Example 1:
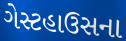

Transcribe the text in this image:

ગેસ્ટહાઉસના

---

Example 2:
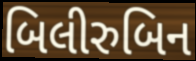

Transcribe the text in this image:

બિલીરુબિન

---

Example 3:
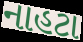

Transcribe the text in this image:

નાહટા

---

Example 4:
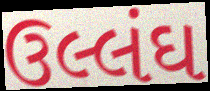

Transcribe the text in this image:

ઉલ્લંઘ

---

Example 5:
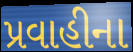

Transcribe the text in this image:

પ્રવાહીના